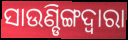
ସାଉଣ୍ଡିଙ୍ଗଦ୍ୱାରା